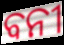
ବନୀ